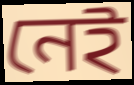
নেই